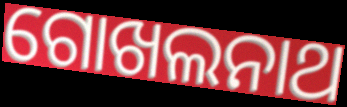
ଗୋଖଲନାଥ